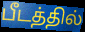
பீடத்தில்